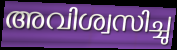
അവിശ്വസിച്ചു